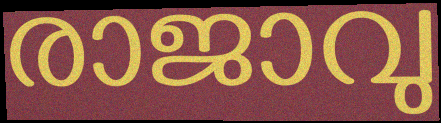
രാജാവു